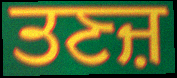
ਤਣਜ਼